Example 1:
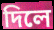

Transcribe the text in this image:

দিলে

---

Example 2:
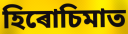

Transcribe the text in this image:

হিৰোচিমাত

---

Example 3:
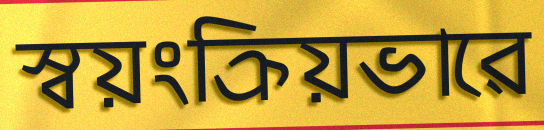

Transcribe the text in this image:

স্বয়ংক্ৰিয়ভাৱে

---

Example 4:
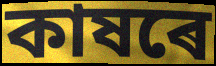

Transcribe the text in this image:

কাষৰে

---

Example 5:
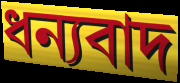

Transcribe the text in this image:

ধন্যবাদ